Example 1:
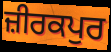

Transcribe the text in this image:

ਜ਼ੀਰਕਪੁਰ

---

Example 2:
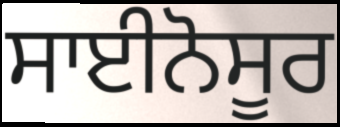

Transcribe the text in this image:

ਸਾਈਨੋਸੂਰ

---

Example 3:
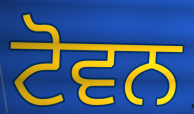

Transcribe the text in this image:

ਟੋਵਨ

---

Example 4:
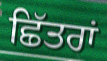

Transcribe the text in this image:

ਛਿੱਤਰਾਂ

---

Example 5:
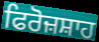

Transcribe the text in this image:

ਫਿਰੋਜ਼ਸ਼ਾਹ